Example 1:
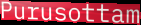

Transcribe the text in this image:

Purusottam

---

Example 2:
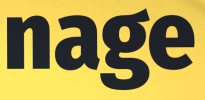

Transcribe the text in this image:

nage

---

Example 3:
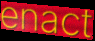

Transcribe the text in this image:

enact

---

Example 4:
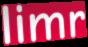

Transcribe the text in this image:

limr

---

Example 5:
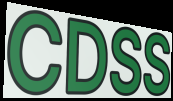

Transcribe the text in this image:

CDSS